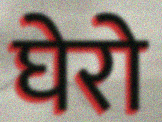
घेरो